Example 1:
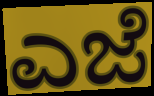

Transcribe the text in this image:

ಎಜೆ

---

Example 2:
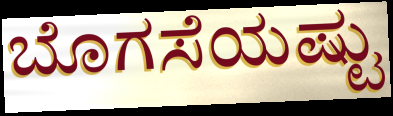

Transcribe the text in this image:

ಬೊಗಸೆಯಷ್ಟು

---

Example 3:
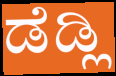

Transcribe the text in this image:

ಡೆಡ್ಲಿ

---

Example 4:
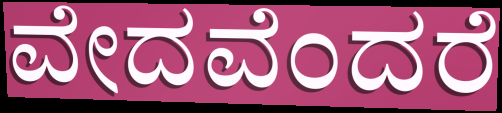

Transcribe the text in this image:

ವೇದವೆಂದರೆ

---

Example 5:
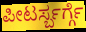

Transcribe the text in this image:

ಪೀಟರ್ಸ್ಬರ್ಗ್ಗೆ